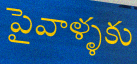
పైవాళ్ళకు